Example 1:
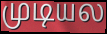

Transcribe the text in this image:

முடியல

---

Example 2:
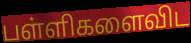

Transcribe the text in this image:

பள்ளிகளைவிட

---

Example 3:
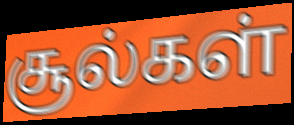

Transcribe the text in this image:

சூல்கள்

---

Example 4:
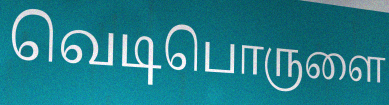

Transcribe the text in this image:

வெடிபொருளை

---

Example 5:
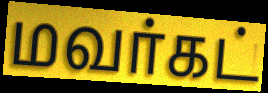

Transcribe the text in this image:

மவர்கட்